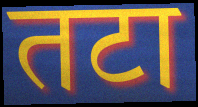
तटा